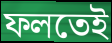
ফলতেই